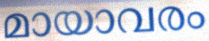
മായാവരം